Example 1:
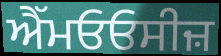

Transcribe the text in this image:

ਐੱਮਓਓਸੀਜ਼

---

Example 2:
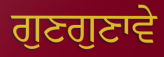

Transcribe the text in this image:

ਗੁਣਗੁਣਾਵੇ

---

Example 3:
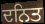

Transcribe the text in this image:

ਦਨਿਤ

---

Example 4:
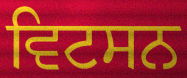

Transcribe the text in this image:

ਵਿਟਸਨ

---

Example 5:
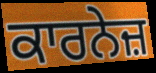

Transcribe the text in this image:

ਕਾਰਨੇਜ਼